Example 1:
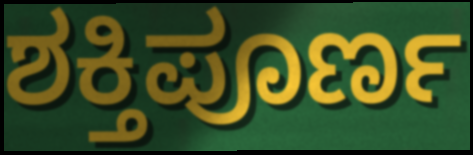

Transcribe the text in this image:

ಶಕ್ತಿಪೂರ್ಣ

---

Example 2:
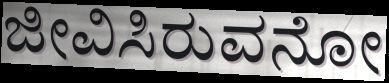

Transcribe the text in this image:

ಜೀವಿಸಿರುವನೋ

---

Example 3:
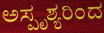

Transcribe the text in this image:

ಅಸ್ಪೃಶ್ಯರಿಂದ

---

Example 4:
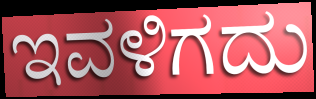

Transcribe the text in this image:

ಇವಳಿಗದು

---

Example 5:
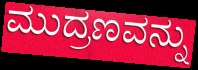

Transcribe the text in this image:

ಮುದ್ರಣವನ್ನು